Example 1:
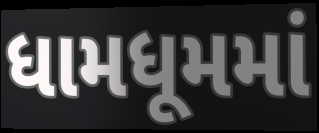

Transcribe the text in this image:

ધામધૂમમાં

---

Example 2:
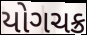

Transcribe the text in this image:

યોગચક્ર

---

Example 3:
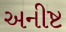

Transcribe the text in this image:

અનીષ્ટ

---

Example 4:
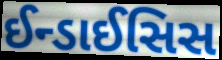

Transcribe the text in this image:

ઈન્ડાઈસિસ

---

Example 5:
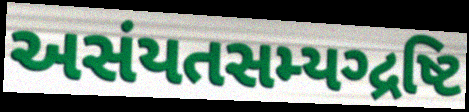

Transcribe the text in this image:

અસંયતસમ્યગ્દ્રષ્ટિ